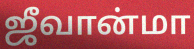
ஜீவான்மா